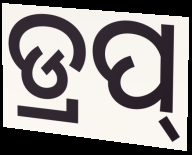
ଡ୍ରପ୍